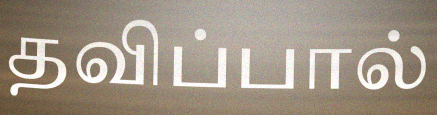
தவிப்பால்